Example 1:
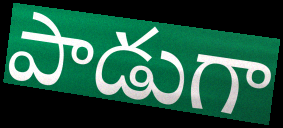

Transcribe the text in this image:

పాడుగా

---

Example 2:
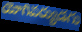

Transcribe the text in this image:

యోగివర్యుడగు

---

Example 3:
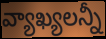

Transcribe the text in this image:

వ్యాఖ్యలన్నీ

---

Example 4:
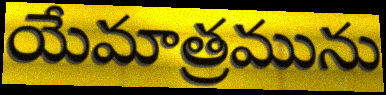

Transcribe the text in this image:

యేమాత్రమును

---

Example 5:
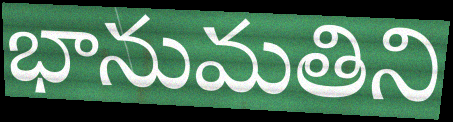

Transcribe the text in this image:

భానుమతిని